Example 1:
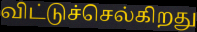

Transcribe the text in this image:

விட்டுச்செல்கிறது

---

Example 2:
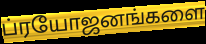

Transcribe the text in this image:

ப்ரயோஜனங்களை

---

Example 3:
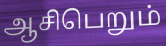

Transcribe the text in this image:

ஆசிபெறும்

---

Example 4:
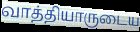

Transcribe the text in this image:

வாத்தியாருடைய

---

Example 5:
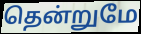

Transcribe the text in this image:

தென்றுமே